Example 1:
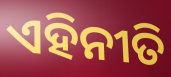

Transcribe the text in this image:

ଏହିନୀତି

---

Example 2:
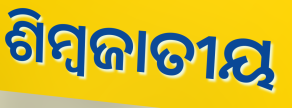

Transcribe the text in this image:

ଶିମ୍ବଜାତୀୟ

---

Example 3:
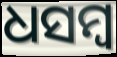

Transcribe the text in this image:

ଧସମ୍ବ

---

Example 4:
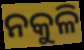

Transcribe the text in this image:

ନକୁଳି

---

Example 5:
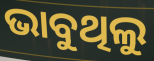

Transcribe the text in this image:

ଭାବୁଥିଲୁ